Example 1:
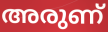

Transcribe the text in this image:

അരുണ്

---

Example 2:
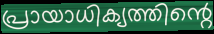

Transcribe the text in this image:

പ്രായാധിക്യത്തിന്റെ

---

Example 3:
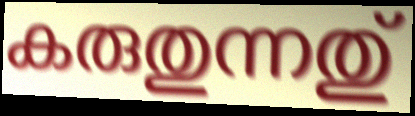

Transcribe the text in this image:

കരുതുന്നതു്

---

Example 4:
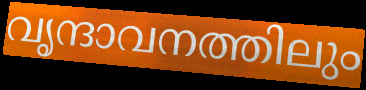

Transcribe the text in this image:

വൃന്ദാവനത്തിലും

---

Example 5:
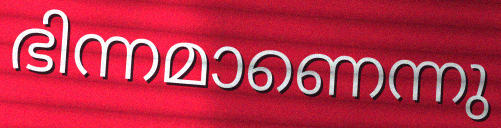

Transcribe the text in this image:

ഭിന്നമാണെന്നു